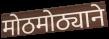
मोठमोठ्याने